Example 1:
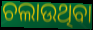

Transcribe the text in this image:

ଚଲାଉଥିବା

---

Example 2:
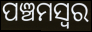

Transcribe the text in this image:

ପଞ୍ଚମସ୍ଵର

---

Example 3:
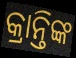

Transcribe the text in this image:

କ୍ରାନ୍ତିଙ୍କ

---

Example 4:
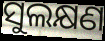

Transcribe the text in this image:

ସୁଲକ୍ଷଣ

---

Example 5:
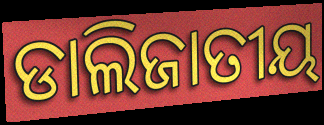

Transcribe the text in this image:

ଡାଲିଜାତୀୟ